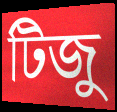
টিজু